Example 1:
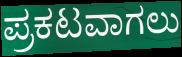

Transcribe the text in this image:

ಪ್ರಕಟವಾಗಲು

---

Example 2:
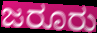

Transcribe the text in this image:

ಜರೂರು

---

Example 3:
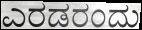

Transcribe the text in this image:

ಎರಡರಂದು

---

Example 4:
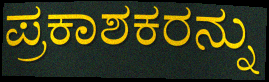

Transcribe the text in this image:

ಪ್ರಕಾಶಕರನ್ನು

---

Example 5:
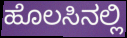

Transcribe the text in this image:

ಹೊಲಸಿನಲ್ಲಿ